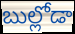
బుల్లోడా